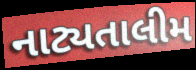
નાટ્યતાલીમ